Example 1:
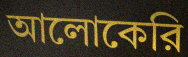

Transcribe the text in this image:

আলোকেরি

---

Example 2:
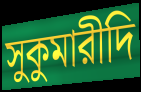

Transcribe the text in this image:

সুকুমারীদি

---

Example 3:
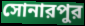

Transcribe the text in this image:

সোনারপুর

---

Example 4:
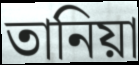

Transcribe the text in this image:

তানিয়া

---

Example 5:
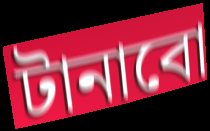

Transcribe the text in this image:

টানাবো